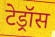
टेड्रॉस